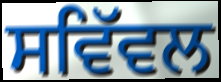
ਸਵਿੱਵਲ